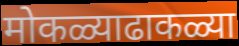
मोकळ्याढाकळ्या